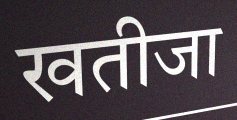
खतीजा